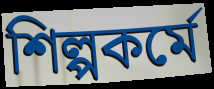
শিল্পকর্মে